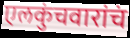
एलकुंचवारांचं